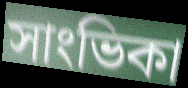
সাংভিকা